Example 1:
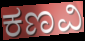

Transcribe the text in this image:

ಕಣವಿ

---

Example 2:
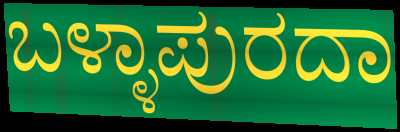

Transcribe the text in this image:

ಬಳ್ಳಾಪುರದಾ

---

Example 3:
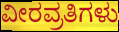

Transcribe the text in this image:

ವೀರವ್ರತಿಗಳು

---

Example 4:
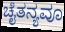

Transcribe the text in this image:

ಚೈತನ್ಯವೂ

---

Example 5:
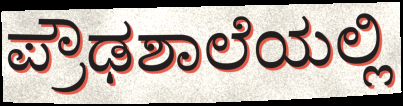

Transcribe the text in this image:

ಪ್ರೌಢಶಾಲೆಯಲ್ಲಿ